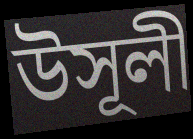
উসূলী